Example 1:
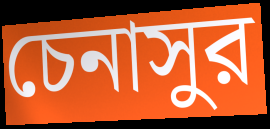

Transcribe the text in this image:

চেনাসুর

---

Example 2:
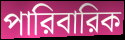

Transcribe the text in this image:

পারিবারিক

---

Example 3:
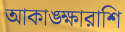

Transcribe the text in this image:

আকাঙ্ক্ষারাশি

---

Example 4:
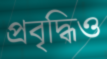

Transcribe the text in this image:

প্রবৃদ্ধিও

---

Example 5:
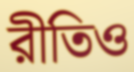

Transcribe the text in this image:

রীতিও